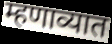
म्हणाव्यात